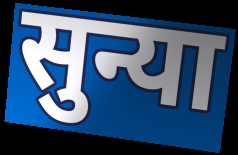
सुन्या